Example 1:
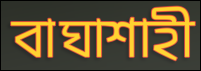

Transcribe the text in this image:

বাঘাশাহী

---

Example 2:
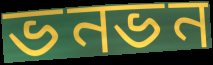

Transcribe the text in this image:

ভনভন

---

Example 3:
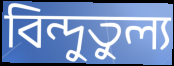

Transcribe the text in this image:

বিন্দুতুল্য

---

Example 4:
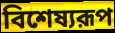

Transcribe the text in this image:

বিশেষ্যরূপ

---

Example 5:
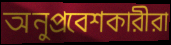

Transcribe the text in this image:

অনুপ্রবেশকারীরা